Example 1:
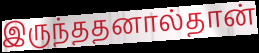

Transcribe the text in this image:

இருந்ததனால்தான்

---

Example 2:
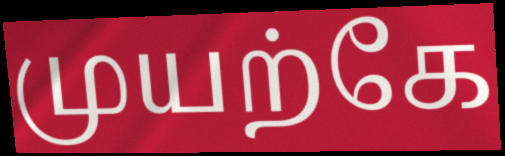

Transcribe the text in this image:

முயற்கே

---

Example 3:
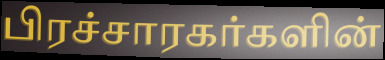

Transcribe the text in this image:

பிரச்சாரகர்களின்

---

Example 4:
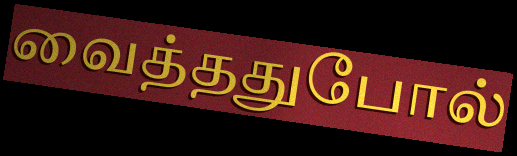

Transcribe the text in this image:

வைத்ததுபோல்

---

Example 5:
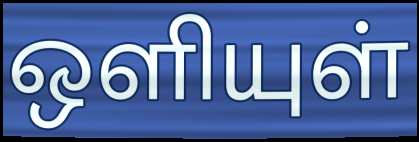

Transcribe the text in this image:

ஒளியுள்